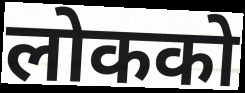
लोकको